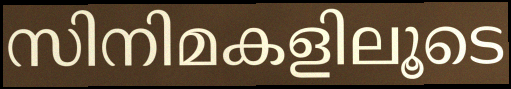
സിനിമകളിലൂടെ